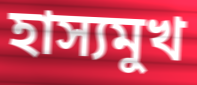
হাস্যমুখ